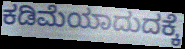
ಕಡಿಮೆಯಾದುದಕ್ಕೆ